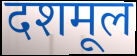
दशमूल